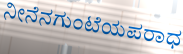
ನೀನೆನಗುಂಟೆಯಪರಾಧ